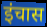
इंचास